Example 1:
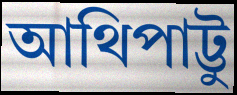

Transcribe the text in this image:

আথিপাট্টু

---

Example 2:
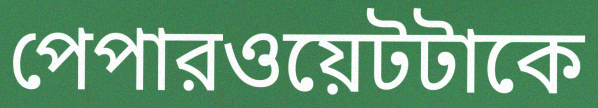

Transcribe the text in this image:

পেপারওয়েটটাকে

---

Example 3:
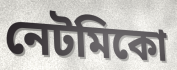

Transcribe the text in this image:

নেটমিকো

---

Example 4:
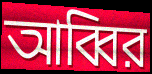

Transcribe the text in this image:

আব্বির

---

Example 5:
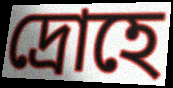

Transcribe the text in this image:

দ্রোহে